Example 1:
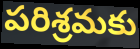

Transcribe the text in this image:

పరిశ్రమకు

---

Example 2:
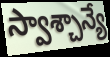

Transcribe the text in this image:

స్వాశ్చాన్యే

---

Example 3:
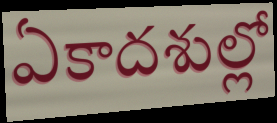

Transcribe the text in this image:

ఏకాదశుల్లో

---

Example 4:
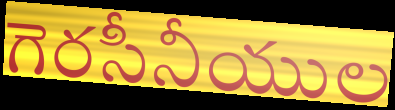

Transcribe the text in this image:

గెరసీనీయుల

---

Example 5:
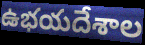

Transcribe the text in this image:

ఉభయదేశాల